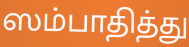
ஸம்பாதித்து